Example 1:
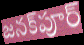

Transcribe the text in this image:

జనక్‌పూర్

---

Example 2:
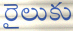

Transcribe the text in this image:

రైలుకు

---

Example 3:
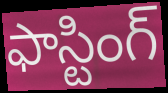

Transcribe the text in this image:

ఫాస్టింగ్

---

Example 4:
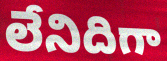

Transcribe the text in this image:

లేనిదిగా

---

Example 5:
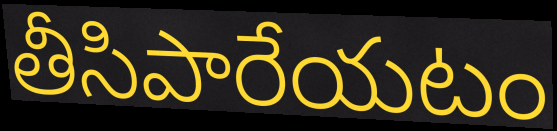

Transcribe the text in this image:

తీసిపారేయటం